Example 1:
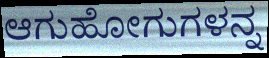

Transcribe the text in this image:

ಆಗುಹೋಗುಗಳನ್ನ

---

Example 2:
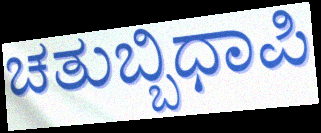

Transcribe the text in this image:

ಚತುಬ್ಬಿಧಾಪಿ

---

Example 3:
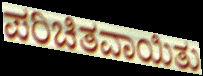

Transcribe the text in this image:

ಪರಿಚಿತವಾಯಿತು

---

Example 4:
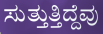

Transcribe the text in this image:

ಸುತ್ತುತ್ತಿದ್ದೆವು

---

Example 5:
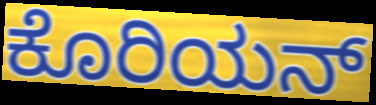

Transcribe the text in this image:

ಕೊರಿಯನ್